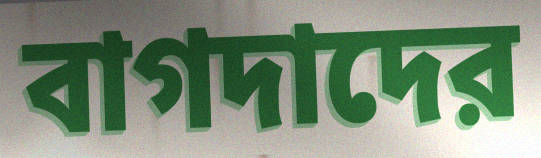
বাগদাদের